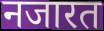
नजारत